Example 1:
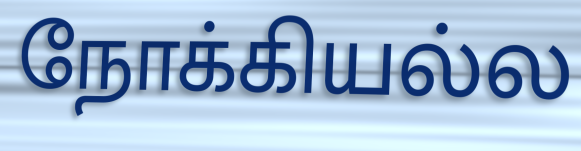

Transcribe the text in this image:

நோக்கியல்ல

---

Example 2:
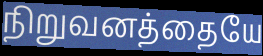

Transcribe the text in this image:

நிறுவனத்தையே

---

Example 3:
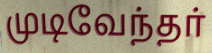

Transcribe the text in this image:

முடிவேந்தர்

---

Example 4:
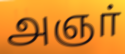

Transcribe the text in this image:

அஞர்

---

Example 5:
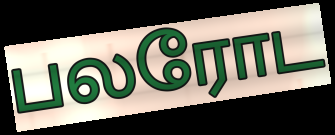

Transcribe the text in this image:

பலரோட